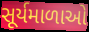
સૂર્યમાળાઓ